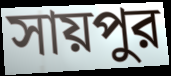
সায়পুর